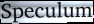
Speculum